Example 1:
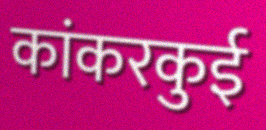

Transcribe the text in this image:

कांकरकुई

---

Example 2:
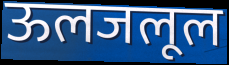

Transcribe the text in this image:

ऊलजलूल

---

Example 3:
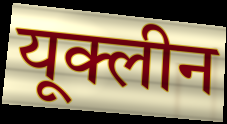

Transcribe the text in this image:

यूक्लीन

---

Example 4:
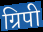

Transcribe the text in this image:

ग्रिपी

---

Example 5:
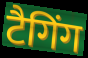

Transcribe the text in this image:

टैगिंग